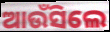
ଆଉଁସିଲେ